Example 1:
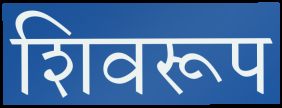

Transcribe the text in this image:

शिवरूप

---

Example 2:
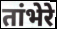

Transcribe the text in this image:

तांभेरे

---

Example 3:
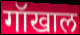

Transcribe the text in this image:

गॉखाल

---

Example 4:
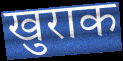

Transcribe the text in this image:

खुराक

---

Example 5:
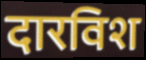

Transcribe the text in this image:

दारविश